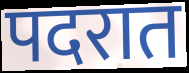
पदरात